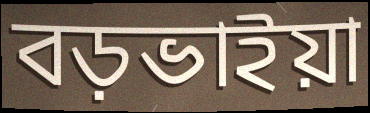
বড়ভাইয়া